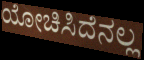
ಯೋಚಿಸಿದೆನಲ್ಲ